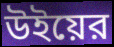
উইয়ের